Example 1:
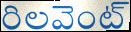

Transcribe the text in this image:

రిలవెంట్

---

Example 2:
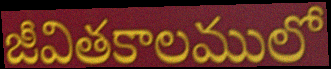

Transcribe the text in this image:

జీవితకాలములో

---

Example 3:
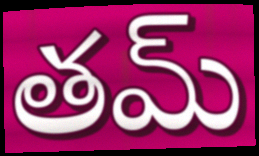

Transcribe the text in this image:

తమ్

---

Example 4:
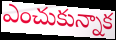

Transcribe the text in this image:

ఎంచుకున్నాక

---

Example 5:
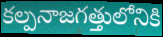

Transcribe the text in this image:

కల్పనాజగత్తులోనికి